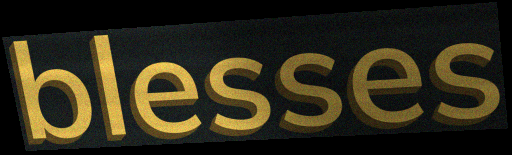
blesses